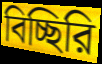
বিচ্ছিরি